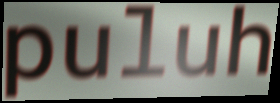
puluh